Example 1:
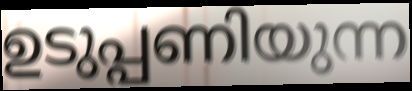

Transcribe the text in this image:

ഉടുപ്പണിയുന്ന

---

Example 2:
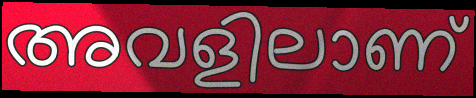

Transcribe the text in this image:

അവളിലാണ്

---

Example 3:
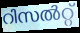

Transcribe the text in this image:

റിസൽറ്റ്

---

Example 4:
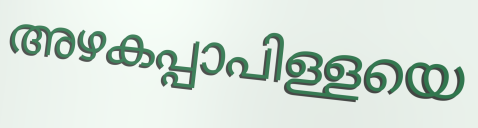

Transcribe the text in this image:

അഴകപ്പാപിള്ളയെ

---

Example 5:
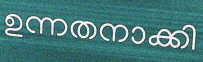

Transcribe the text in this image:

ഉന്നതനാക്കി